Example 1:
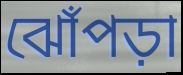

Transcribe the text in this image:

ঝোঁপড়া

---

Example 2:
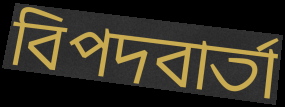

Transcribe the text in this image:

বিপদবার্তা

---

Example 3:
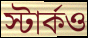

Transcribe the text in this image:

স্টার্কও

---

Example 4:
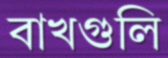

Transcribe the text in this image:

বাখগুলি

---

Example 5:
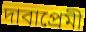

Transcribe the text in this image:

দাবাপ্রেমী